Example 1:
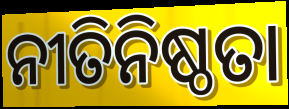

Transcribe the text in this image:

ନୀତିନିଷ୍ଠତା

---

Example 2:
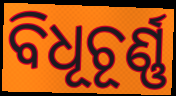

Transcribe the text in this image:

ବିଧୂଚୂର୍ଣ୍ଣ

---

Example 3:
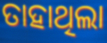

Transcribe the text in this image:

ତାହାଥିଲା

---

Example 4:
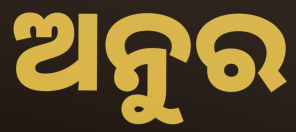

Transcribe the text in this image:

ଅନୁର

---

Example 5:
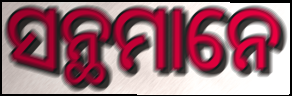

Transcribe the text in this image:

ସନ୍ଥମାନେ